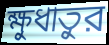
ক্ষুধাতুর